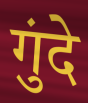
गुंदे